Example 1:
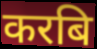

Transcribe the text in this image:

करबि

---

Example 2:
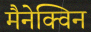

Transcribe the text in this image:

मैनेक्विन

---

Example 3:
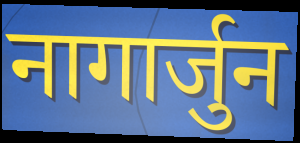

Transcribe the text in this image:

नागार्जुन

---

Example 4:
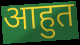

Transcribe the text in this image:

आहुत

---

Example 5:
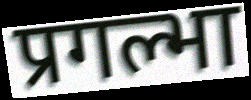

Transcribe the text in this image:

प्रगल्भा